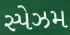
સ્પેઝમ